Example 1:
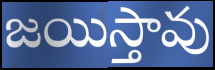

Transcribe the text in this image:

జయిస్తావు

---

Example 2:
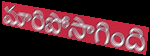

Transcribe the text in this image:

మారిపోసాగింది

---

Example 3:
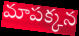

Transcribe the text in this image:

మాపక్కన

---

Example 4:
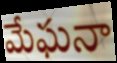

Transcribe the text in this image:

మేఘనా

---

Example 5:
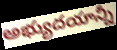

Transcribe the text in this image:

అభ్యుదయాన్నీ